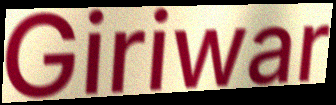
Giriwar